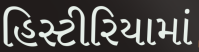
હિસ્ટીરિયામાં